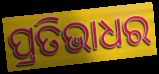
ପ୍ରତିଭାଧର